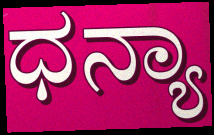
ಧನ್ಯಾ